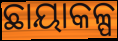
ଛାୟାକଳ୍ପ